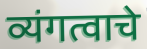
व्यंगत्वाचे